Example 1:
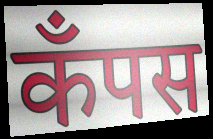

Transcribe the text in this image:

कॅंपस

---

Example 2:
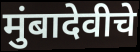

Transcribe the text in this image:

मुंबादेवीचे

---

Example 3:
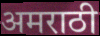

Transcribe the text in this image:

अमराठी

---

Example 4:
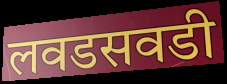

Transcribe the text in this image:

लवडसवडी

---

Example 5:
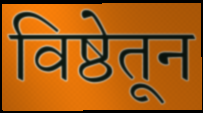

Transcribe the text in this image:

विष्ठेतून